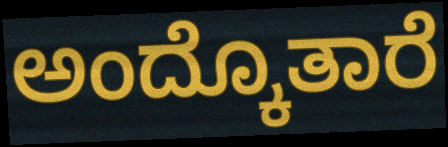
ಅಂದ್ಕೊತಾರೆ